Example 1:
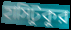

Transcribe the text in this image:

হাসিটুকুর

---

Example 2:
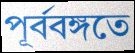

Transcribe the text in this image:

পূর্ববঙ্গতে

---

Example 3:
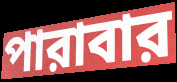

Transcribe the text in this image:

পারাবার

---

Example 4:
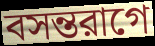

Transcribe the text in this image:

বসন্তরাগে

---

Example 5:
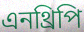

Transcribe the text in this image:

এনথ্রিপি